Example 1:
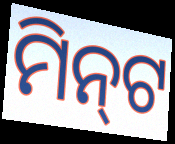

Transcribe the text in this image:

ମିନ୍‌ଟ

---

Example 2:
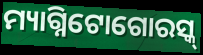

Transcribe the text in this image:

ମ୍ୟାଗ୍ନିଟୋଗୋରସ୍କ୍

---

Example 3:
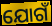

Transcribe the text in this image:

ଯୋଗଁ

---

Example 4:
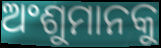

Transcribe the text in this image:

ଅଂଶୁମାନକୁ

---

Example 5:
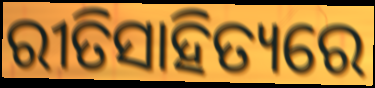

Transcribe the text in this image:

ରୀତିସାହିତ୍ୟରେ